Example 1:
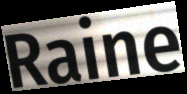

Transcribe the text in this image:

Raine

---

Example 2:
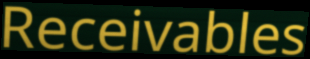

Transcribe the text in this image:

Receivables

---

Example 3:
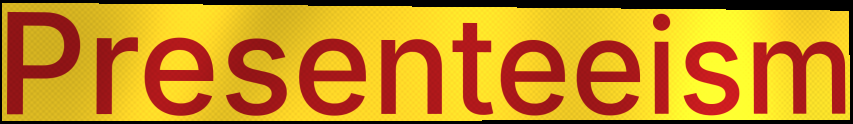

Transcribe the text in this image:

Presenteeism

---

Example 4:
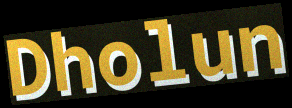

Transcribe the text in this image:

Dholun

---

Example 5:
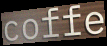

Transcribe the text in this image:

coffe